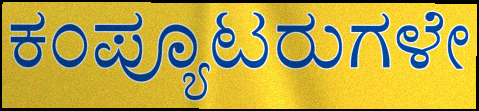
ಕಂಪ್ಯೂಟರುಗಳೇ